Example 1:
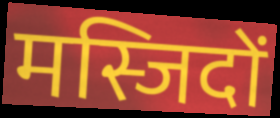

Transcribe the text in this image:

मस्‍जिदों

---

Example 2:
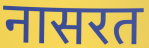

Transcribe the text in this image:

नासरत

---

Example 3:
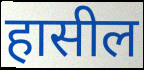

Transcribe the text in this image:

हासील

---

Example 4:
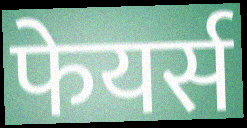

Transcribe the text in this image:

फेयर्स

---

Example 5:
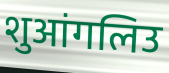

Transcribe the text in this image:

शुआंगलिउ